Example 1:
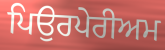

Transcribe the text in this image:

ਪਿਉਰਪੇਰੀਅਮ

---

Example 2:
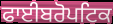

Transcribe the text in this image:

ਫਾਈਬਰੋਪਟਿਕ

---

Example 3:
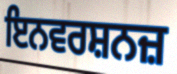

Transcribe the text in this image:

ਇਨਵਰਸ਼ਨਜ਼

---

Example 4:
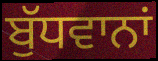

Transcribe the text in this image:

ਬੁੱਧਵਾਨਾਂ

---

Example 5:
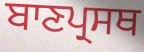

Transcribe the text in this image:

ਬਾਣਪ੍ਰਸਥ